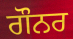
ਗੌਨਰ